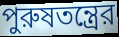
পুরুষতন্ত্রের